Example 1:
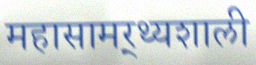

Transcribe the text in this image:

महासामर्थ्यशाली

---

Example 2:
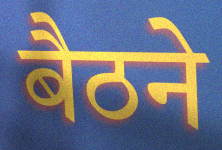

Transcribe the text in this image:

बैठने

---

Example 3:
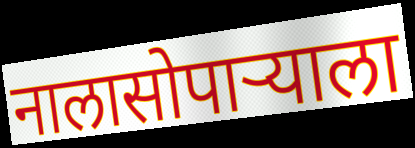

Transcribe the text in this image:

नालासोपाऱ्याला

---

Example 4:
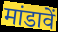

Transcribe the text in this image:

मांडावें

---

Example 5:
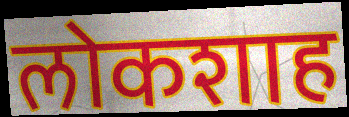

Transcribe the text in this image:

लोकशाह